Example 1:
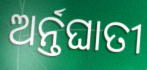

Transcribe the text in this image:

ଅର୍ନ୍ତଘାତୀ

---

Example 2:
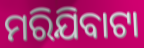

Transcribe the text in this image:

ମରିଯିବାଟା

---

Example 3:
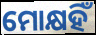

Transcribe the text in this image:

ମୋକ୍ଷହିଁ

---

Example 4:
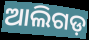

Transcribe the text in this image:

ଆଲିଗଡ଼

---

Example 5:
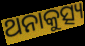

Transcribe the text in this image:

ଥନାକୁତ୍ସ୍ୟ